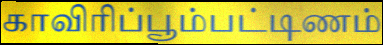
காவிரிப்பூம்பட்டிணம்